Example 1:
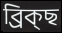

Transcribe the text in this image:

ব্ৰিক্‌ছ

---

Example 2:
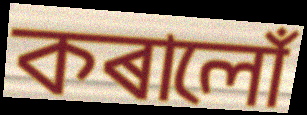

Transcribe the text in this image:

কৰালোঁ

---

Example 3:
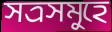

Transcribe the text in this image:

সত্ৰসমুহে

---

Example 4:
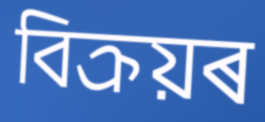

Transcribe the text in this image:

বিক্ৰয়ৰ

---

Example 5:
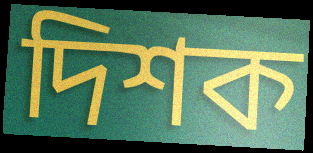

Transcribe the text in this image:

দিশক